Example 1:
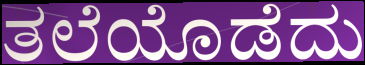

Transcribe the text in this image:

ತಲೆಯೊಡೆದು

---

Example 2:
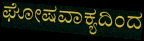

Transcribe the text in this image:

ಘೋಷವಾಕ್ಯದಿಂದ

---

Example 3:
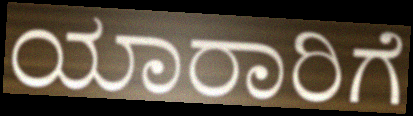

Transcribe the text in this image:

ಯಾರಾರಿಗೆ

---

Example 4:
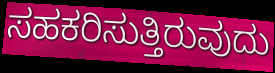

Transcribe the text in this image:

ಸಹಕರಿಸುತ್ತಿರುವುದು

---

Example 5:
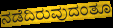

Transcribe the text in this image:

ನಡೆದಿರುವುದಂತೂ